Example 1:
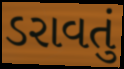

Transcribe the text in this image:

ડરાવતું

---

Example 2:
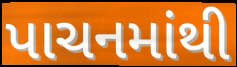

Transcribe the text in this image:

પાચનમાંથી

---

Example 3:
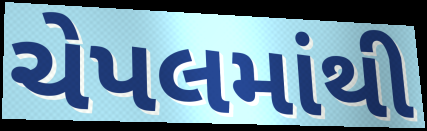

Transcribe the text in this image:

ચેપલમાંથી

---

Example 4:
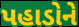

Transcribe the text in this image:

પહાડોને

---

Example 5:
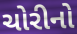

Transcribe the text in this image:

ચોરીનો